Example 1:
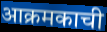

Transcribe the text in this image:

आक्रमकाची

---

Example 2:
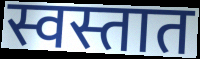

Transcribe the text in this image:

स्वस्तात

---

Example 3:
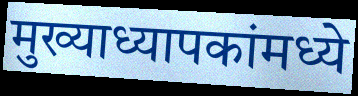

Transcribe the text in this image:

मुख्याध्यापकांमध्ये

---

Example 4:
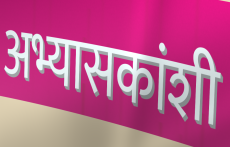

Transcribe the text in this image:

अभ्यासकांशी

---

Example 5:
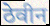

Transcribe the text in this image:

ठेवीन